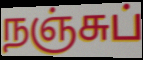
நஞ்சுப்